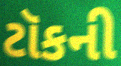
ટૉકની